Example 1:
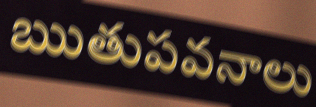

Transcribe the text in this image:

ఋతుపవనాలు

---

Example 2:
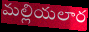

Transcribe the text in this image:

మల్లియలార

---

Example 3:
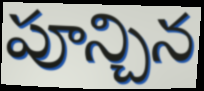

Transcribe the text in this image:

పూన్చిన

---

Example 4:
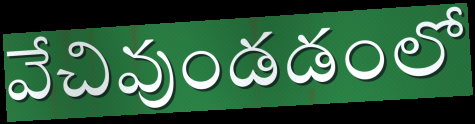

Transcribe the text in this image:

వేచివుండడంలో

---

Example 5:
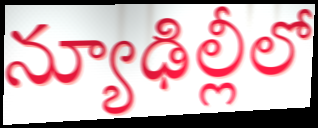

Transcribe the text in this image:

న్యూఢిల్లీలో